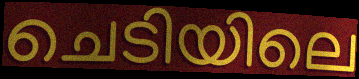
ചെടിയിലെ